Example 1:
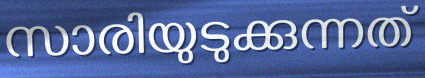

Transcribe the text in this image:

സാരിയുടുക്കുന്നത്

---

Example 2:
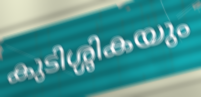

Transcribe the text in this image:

കുടിശ്ശികയും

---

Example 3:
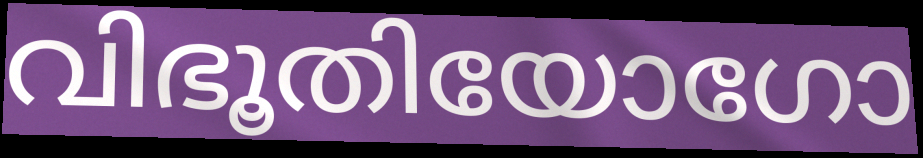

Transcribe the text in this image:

വിഭൂതിയോഗോ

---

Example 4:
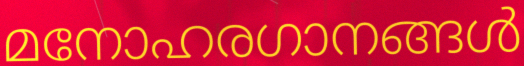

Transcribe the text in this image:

മനോഹരഗാനങ്ങൾ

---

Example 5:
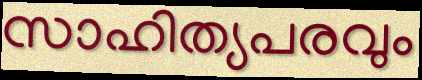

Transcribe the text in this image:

സാഹിത്യപരവും